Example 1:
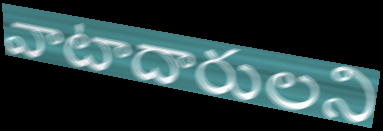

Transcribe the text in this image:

వాటాదారులని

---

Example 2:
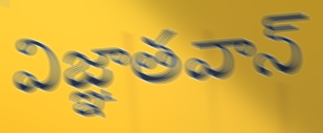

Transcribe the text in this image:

విజ్ఞాతవాన్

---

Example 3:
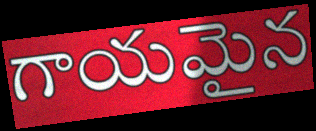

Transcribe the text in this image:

గాయమైన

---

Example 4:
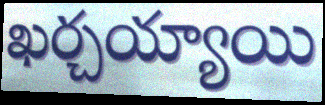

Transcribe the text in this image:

ఖర్చయ్యాయి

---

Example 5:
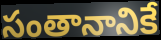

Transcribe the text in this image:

సంతానానికే